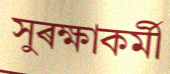
সুৰক্ষাকৰ্মী